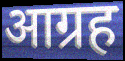
आग्रह